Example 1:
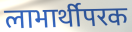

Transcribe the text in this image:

लाभार्थीपरक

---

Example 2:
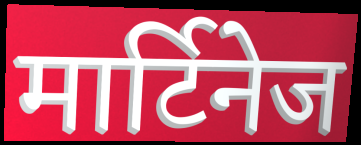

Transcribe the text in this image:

मार्टिनेज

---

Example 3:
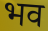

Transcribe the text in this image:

भव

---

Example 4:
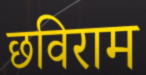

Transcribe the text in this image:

छविराम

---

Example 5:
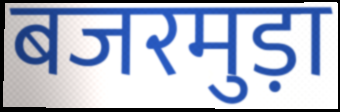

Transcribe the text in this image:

बजरमुड़ा